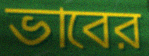
ভাবের